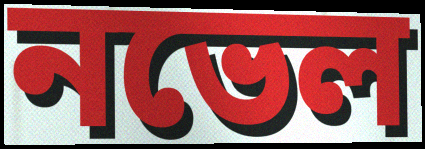
নভেল